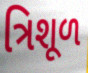
ત્રિશૂળ